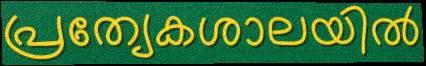
പ്രത്യേകശാലയിൽ